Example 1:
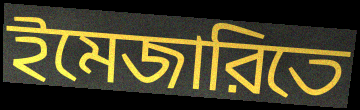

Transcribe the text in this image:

ইমেজারিতে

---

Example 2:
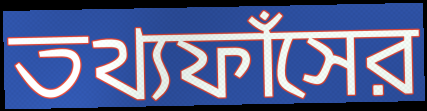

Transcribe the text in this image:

তথ্যফাঁসের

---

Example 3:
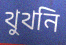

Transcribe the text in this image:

থুথনি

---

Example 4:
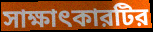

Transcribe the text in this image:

সাক্ষাৎকারটির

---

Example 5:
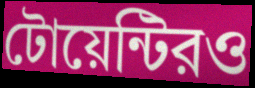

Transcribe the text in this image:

টোয়েন্টিরও